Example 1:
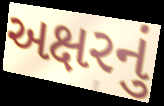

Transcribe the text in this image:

અક્ષરનું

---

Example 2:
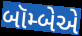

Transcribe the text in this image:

બૉમ્બેએ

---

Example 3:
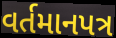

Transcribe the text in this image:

વર્તમાનપત્ર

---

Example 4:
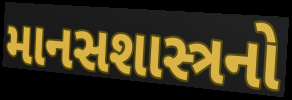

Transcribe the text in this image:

માનસશાસ્ત્રનો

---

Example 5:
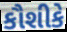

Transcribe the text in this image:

કૌશીકે